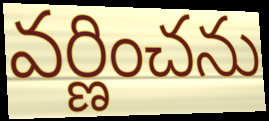
వర్ణించను